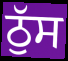
ਠੁੱਸ